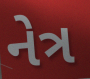
નેત્ર